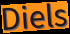
Diels